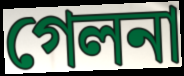
গেলনা